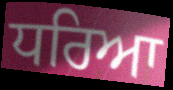
ਧਰਿਆ